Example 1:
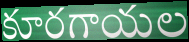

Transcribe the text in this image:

కూరగాయల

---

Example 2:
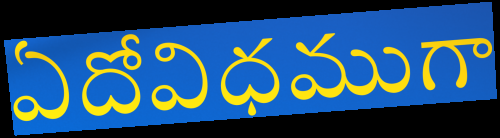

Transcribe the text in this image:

ఏదోవిధముగా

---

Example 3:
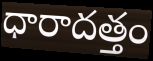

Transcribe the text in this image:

ధారాదత్తం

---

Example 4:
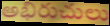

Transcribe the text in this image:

అభిరుచులు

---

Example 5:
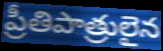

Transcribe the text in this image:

ప్రీతిపాత్రులైన